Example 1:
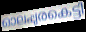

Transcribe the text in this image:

ഓലപ്പുരകെട്ടി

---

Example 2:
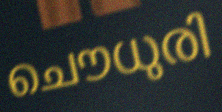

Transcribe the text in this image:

ചൌധുരി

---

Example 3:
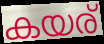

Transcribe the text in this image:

കയര്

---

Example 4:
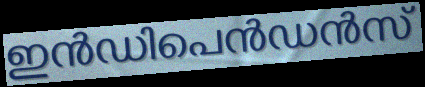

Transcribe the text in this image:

ഇൻഡിപെൻഡൻസ്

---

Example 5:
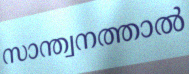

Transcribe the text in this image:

സാന്ത്വനത്താൽ